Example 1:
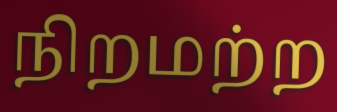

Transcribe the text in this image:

நிறமற்ற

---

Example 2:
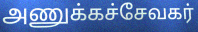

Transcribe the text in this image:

அணுக்கச்சேவகர்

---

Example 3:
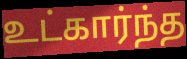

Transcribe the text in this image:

உட்கார்ந்த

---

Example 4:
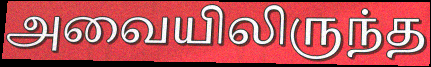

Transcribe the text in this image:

அவையிலிருந்த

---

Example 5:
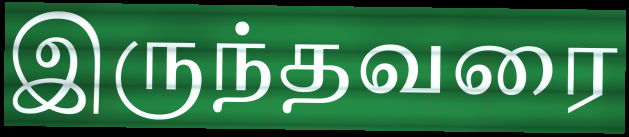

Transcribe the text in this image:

இருந்தவரை